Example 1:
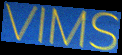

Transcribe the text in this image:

VIMS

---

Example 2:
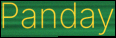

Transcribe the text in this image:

Panday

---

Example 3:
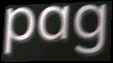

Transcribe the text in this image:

pag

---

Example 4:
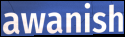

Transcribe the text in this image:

awanish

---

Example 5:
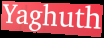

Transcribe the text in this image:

Yaghuth